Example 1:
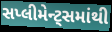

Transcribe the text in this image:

સપ્લીમેન્ટ્સમાંથી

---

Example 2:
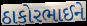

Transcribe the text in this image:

ઠાકોરભાઈને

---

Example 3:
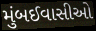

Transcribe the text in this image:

મુંબઈવાસીઓ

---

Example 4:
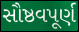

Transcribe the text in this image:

સૌષ્ઠવપૂર્ણ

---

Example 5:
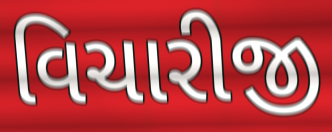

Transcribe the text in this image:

વિચારીજી